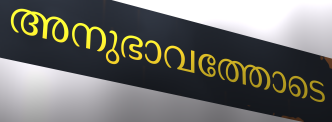
അനുഭാവത്തോടെ